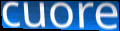
cuore